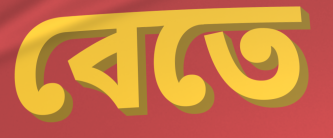
বেতে